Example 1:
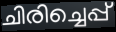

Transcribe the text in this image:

ചിരിച്ചെപ്പ്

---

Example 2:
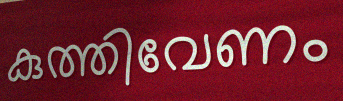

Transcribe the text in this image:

കുത്തിവേണം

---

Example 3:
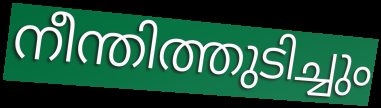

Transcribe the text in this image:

നീന്തിത്തുടിച്ചും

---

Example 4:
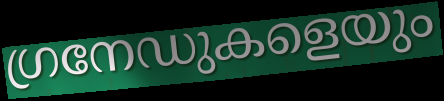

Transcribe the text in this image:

ഗ്രനേഡുകളെയും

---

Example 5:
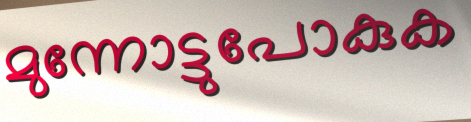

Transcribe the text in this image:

മുന്നോട്ടുപോകുക